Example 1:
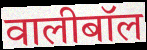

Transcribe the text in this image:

वालीबॉल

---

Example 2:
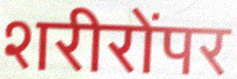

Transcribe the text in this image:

शरीरोंपर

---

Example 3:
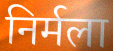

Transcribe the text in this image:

निर्मला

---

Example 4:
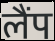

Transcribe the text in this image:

लैंप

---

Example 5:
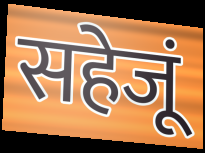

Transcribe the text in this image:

सहेजूं